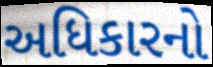
અધિકારનો